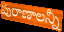
పురాణాలన్నీ